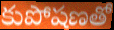
కుపోషణతో